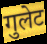
गुलेट